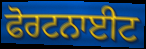
ਫੋਰਟਨਾਈਟ